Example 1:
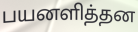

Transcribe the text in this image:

பயனளித்தன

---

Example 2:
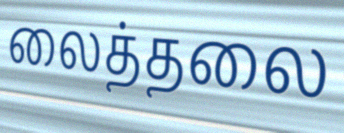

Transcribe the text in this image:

லைத்தலை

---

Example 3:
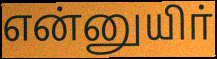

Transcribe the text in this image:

என்னுயிர்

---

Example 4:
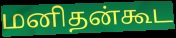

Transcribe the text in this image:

மனிதன்கூட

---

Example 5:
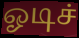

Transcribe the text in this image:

ஓடிச்